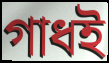
গাধই